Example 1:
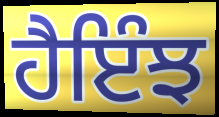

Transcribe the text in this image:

ਹੈਇੰਝ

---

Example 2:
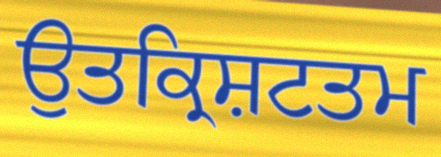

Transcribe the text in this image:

ਉਤਕ੍ਰਿਸ਼ਟਤਮ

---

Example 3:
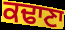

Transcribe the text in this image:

ਕਢਾਣਾ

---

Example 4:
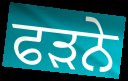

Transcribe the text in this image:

ਫੜਨੇ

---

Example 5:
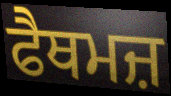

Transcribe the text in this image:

ਫੈਥਮਜ਼